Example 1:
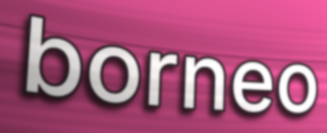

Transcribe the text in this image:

borneo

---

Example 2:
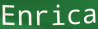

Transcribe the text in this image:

Enrica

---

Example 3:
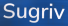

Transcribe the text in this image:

Sugriv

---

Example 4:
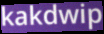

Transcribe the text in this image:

kakdwip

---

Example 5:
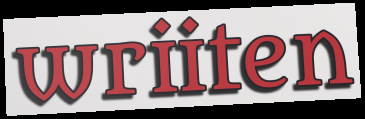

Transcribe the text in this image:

wriiten